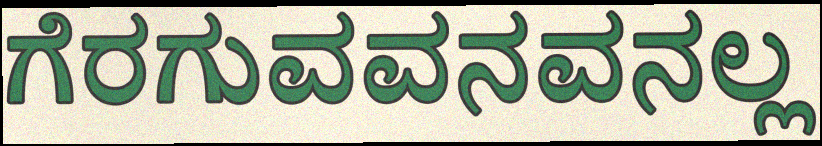
ಗೆರಗುವವನವನಲ್ಲ